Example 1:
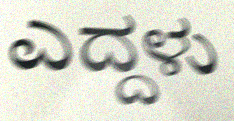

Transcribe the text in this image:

ಎದ್ದಳು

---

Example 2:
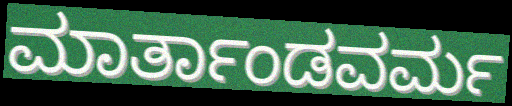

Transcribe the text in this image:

ಮಾರ್ತಾಂಡವರ್ಮ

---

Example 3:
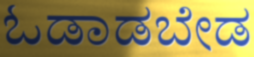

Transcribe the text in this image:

ಓಡಾಡಬೇಡ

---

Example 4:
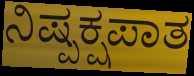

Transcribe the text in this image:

ನಿಷ್ಪಕ್ಷಪಾತ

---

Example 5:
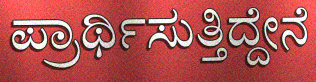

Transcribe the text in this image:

ಪ್ರಾರ್ಥಿಸುತ್ತಿದ್ದೇನೆ